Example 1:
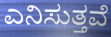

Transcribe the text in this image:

ಎನಿಸುತ್ತವೆ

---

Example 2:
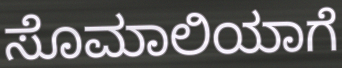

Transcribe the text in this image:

ಸೊಮಾಲಿಯಾಗೆ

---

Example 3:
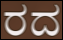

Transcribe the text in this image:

ರದ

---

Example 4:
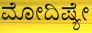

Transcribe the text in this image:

ಮೋದಿಷ್ಯೇ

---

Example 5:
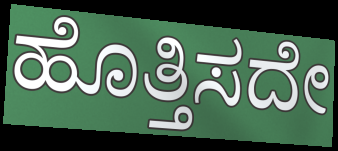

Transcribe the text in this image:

ಹೊತ್ತಿಸದೇ